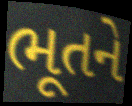
ભૂતને